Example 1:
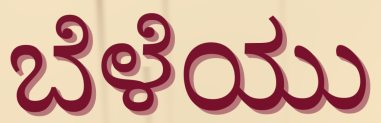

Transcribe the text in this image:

ಬೆಳೆಯು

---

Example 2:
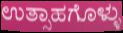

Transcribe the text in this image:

ಉತ್ಸಾಹಗೊಳ್ಳು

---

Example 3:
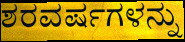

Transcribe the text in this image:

ಶರವರ್ಷಗಳನ್ನು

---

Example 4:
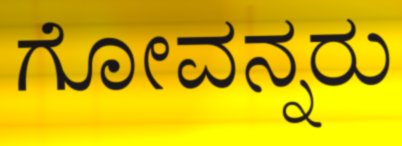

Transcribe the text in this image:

ಗೋವನ್ನರು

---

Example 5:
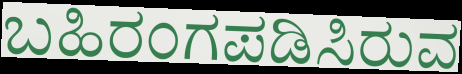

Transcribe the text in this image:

ಬಹಿರಂಗಪಡಿಸಿರುವ